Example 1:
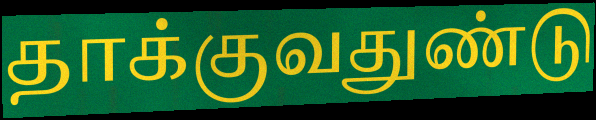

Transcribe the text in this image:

தாக்குவதுண்டு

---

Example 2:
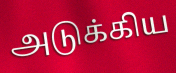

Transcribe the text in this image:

அடுக்கிய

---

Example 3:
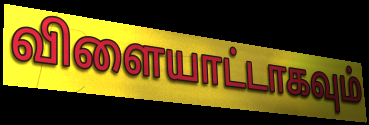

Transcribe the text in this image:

விளையாட்டாகவும்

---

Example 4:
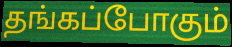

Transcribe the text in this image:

தங்கப்போகும்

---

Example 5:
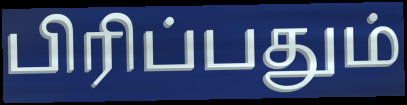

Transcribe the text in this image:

பிரிப்பதும்